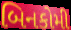
બિનકોમી